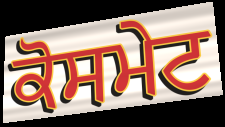
ਕੋਸਮੇਟ